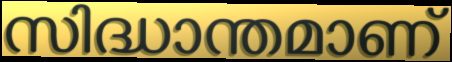
സിദ്ധാന്തമാണ്